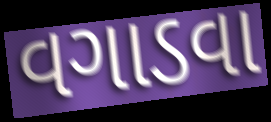
વગાડવા